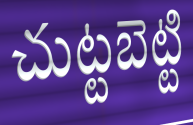
చుట్టబెట్టి